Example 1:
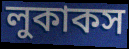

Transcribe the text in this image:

লুকাকস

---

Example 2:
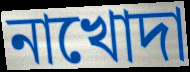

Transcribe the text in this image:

নাখোদা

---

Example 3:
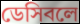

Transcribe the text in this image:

ডেসিবলে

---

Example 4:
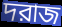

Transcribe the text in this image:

দরাজ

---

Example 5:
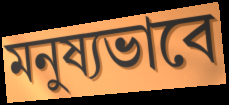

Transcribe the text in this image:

মনুষ্যভাবে